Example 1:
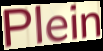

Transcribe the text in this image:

Plein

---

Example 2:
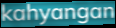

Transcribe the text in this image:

kahyangan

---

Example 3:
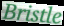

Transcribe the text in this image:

Bristle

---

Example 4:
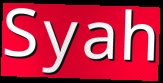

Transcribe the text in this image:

Syah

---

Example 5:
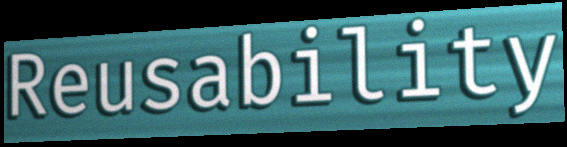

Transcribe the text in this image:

Reusability